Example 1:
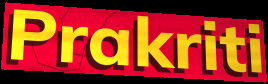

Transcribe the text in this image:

Prakriti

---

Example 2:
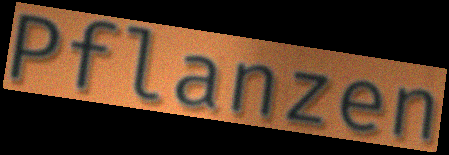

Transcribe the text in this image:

Pflanzen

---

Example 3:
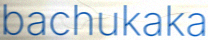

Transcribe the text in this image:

bachukaka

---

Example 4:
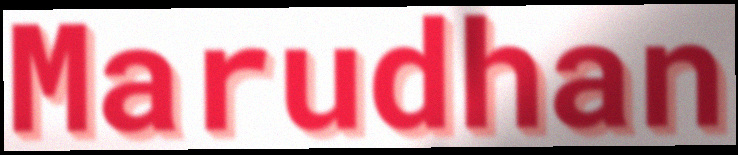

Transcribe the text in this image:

Marudhan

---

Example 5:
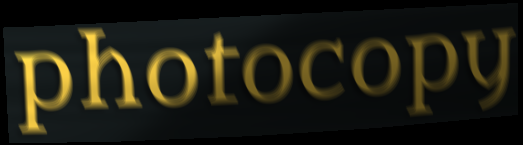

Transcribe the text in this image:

photocopy